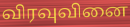
விரவுவினை